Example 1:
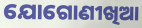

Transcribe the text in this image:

ଯୋଗୋଣୀଖିଆ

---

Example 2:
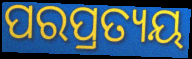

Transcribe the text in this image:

ପରପ୍ରତ୍ୟୟ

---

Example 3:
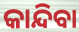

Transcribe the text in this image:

କାନ୍ଦିବା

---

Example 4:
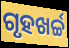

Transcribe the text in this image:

ଗୃହଖର୍ଚ୍ଚ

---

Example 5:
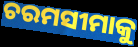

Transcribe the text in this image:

ଚରମସୀମାକୁ